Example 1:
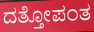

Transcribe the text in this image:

ದತ್ತೋಪಂತ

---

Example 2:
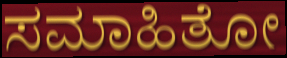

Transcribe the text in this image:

ಸಮಾಹಿತೋ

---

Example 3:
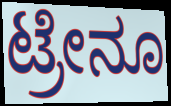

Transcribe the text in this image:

ಟ್ರೇನೂ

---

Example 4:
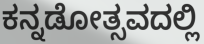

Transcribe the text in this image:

ಕನ್ನಡೋತ್ಸವದಲ್ಲಿ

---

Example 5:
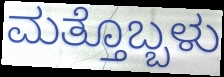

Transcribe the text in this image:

ಮತ್ತೊಬ್ಬಳು